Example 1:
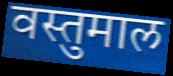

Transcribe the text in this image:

वस्तुमाल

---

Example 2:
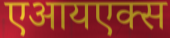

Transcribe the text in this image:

एआयएक्स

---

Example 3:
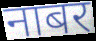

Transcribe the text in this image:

नाबर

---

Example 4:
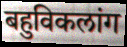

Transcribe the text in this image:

बहुविकलांग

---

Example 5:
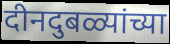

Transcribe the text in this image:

दीनदुबळ्यांच्या